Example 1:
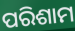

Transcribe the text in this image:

ପରିଶାମ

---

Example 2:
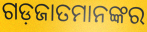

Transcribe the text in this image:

ଗଡ଼ଜାତମାନଙ୍କର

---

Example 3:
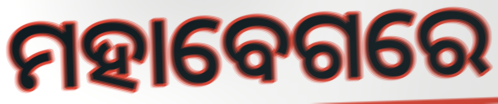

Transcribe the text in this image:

ମହାବେଗରେ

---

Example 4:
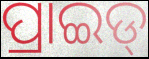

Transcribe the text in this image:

ପ୍ରାଇଡ୍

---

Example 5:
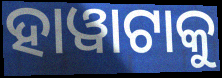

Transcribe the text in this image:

ହାୱାଟାକୁ